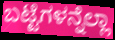
ಬಟ್ಟೆಗಳನ್ನೆಲ್ಲಾ